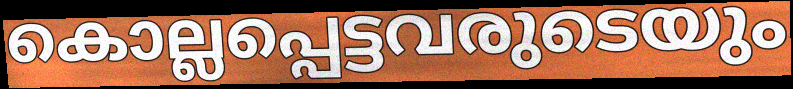
കൊല്ലപ്പെട്ടവരുടെയും